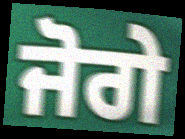
ਜੋਗੇ